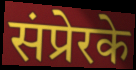
संप्रेरके